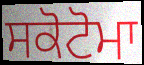
ਸਕੋਟੋਮਾ